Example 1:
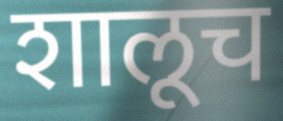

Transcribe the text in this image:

शालूच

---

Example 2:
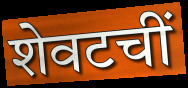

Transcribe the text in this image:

शेवटचीं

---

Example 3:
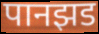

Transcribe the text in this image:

पानझड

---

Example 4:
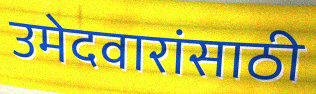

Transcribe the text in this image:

उमेदवारांसाठी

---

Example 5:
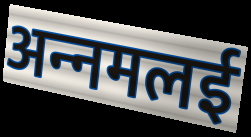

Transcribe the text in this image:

अन्नमलई